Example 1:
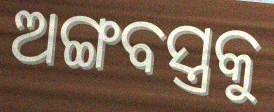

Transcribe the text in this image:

ଅଙ୍ଗବସ୍ତ୍ରକୁ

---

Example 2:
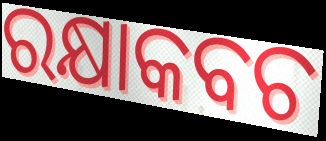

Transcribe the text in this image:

ରକ୍ଷାକବଚ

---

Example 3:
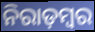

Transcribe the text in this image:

ନିରାଡ଼ମ୍ବର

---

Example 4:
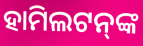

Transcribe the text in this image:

ହାମିଲଟନ୍‍ଙ୍କ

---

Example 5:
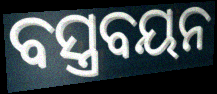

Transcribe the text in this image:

ବସ୍ତ୍ରବୟନ